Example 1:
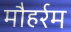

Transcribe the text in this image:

मौहर्रम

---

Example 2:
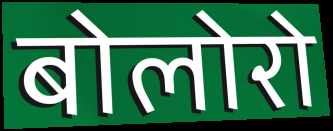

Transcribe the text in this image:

बोलोरो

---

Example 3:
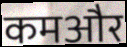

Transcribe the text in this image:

कमऔर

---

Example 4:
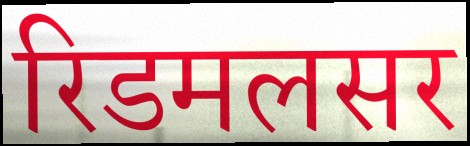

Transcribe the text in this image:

रिडमलसर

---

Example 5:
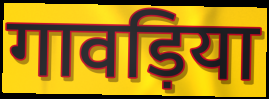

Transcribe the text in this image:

गावड़िया